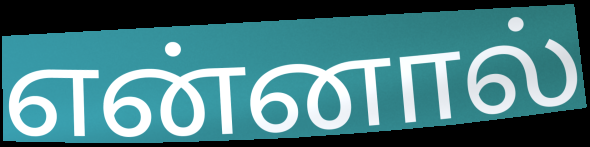
என்னால்